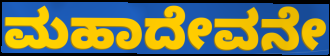
ಮಹಾದೇವನೇ